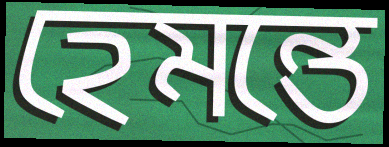
হেমন্তে